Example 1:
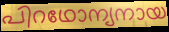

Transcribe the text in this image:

പിറഥോന്യനായ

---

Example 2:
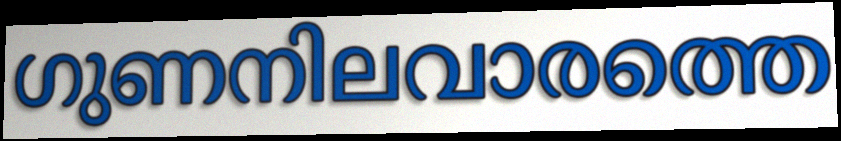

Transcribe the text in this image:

ഗുണനിലവാരത്തെ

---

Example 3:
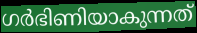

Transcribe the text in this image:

ഗർഭിണിയാകുന്നത്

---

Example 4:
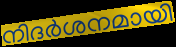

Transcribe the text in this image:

നിദർശനമായി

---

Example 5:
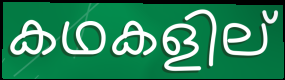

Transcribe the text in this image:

കഥകളില്